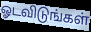
ஓடவிடுங்கள்